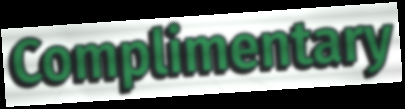
Complimentary